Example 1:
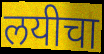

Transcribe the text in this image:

लयीचा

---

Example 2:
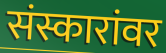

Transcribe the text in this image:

संस्कारांवर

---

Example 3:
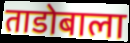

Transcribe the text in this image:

ताडोबाला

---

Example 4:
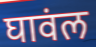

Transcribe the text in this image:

घावंल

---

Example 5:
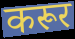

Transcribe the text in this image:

करूर